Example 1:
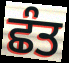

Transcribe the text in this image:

ਛੰਤ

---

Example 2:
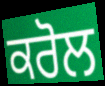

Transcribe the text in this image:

ਕਰੋਲ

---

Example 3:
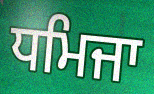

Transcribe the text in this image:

ਧਮਿਜਾ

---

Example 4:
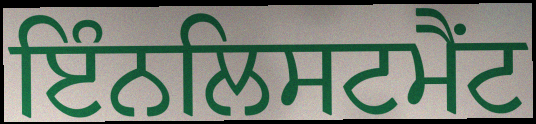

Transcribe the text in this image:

ਇੰਨਲਿਸਟਮੈਂਟ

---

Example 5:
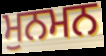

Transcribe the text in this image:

ਮੁਨਮਨ